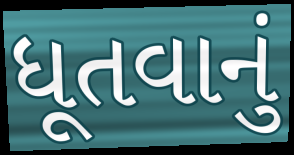
ધૂતવાનું